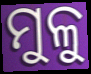
ମୁଳୁ